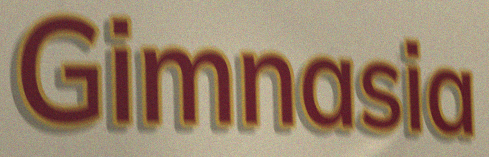
Gimnasia